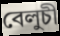
বেলুচী